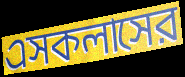
এসকলাসের